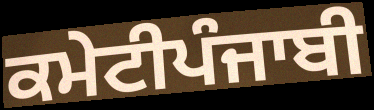
ਕਮੇਟੀਪੰਜਾਬੀ